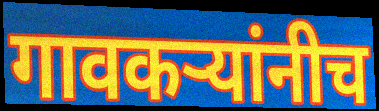
गावकऱ्यांनीच